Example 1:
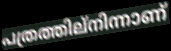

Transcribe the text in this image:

പത്രത്തില്നിന്നാണ്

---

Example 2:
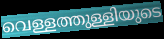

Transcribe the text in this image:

വെള്ളത്തുള്ളിയുടെ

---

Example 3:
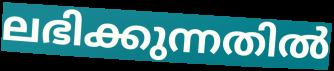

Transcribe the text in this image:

ലഭിക്കുന്നതിൽ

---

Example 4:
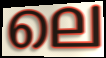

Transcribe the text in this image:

ലെ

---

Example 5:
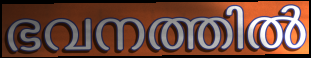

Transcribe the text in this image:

ഭവനത്തിൽ